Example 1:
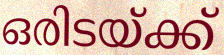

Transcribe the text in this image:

ഒരിടയ്ക്ക്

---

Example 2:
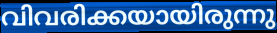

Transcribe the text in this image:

വിവരിക്കയായിരുന്നു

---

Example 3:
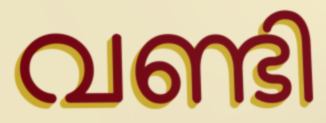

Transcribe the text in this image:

വണ്ടി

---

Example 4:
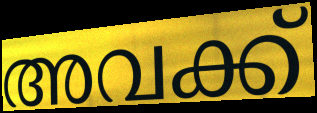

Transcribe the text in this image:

അവക്ക്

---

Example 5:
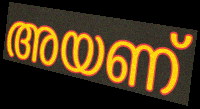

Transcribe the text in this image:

അയണ്